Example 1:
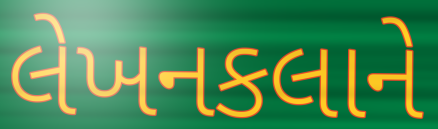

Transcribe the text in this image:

લેખનકલાને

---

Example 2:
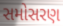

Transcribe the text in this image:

સમોસરણ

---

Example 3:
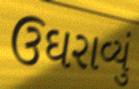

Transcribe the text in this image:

ઉઘરાવ્યું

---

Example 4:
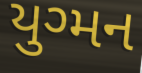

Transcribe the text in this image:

યુગ્મન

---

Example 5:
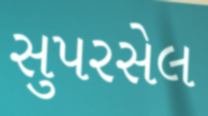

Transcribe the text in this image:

સુપરસેલ